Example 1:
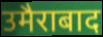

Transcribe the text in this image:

उमैराबाद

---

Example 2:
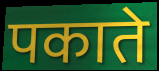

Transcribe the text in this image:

पकाते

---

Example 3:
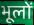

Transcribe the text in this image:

भूलों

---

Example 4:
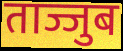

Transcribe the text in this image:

ताज्जुब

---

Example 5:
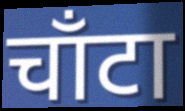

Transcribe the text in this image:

चाँटा